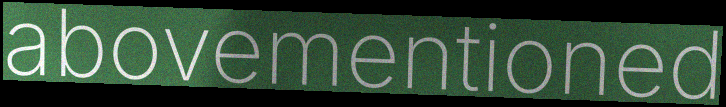
abovementioned